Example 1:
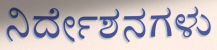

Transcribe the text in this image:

ನಿರ್ದೇಶನಗಳು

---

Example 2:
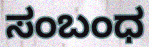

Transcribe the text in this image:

ಸಂಬಂಧ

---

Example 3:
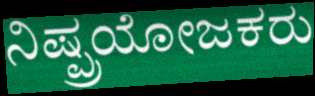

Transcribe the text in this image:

ನಿಷ್ಪ್ರಯೋಜಕರು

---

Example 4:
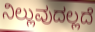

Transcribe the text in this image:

ನಿಲ್ಲುವುದಲ್ಲದೆ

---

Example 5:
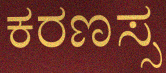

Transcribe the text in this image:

ಕರಣಸ್ಸ